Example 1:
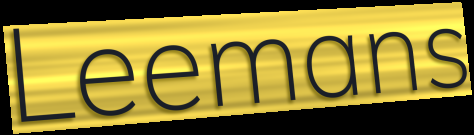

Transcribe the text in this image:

Leemans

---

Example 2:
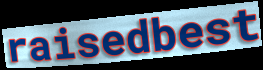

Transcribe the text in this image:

raisedbest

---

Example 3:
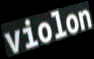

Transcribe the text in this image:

violon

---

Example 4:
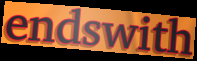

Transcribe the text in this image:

endswith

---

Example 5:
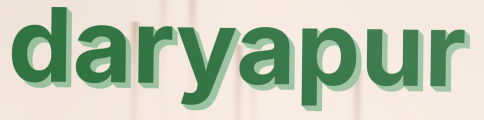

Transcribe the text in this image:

daryapur